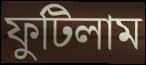
ফুটিলাম